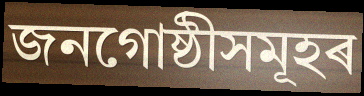
জনগোষ্ঠীসমূহৰ